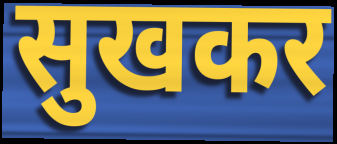
सुखकर